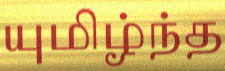
யுமிழ்ந்த